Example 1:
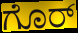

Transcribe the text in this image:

ಗೊರ್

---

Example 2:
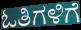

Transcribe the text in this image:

ಓತಿಗಳಿಗೆ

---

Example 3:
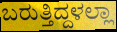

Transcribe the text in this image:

ಬರುತ್ತಿದ್ದಳಲ್ಲಾ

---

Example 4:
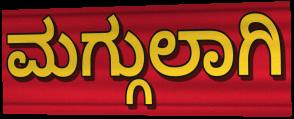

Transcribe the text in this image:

ಮಗ್ಗುಲಾಗಿ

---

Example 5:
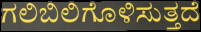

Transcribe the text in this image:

ಗಲಿಬಿಲಿಗೊಳಿಸುತ್ತದೆ